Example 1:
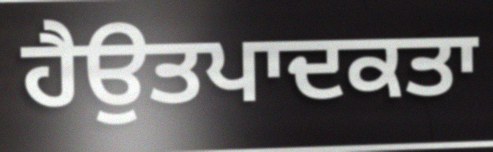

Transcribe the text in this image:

ਹੈਉਤਪਾਦਕਤਾ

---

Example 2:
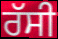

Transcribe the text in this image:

ਰੱਸੀ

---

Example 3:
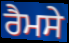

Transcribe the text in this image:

ਰੈਮਸੇ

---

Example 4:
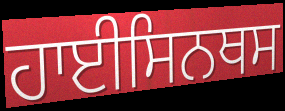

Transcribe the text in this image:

ਹਾਈਸਿਨਥਸ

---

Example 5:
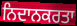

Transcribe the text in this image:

ਨਿਦਾਨਕਰਤਾ